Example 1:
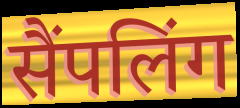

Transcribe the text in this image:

सैंपलिंग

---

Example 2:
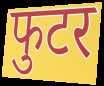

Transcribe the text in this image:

फुटर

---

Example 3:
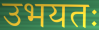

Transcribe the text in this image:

उभयतः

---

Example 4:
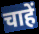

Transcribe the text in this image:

चाहें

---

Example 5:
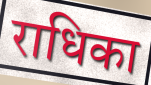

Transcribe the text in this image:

राधिका